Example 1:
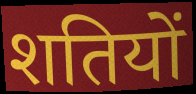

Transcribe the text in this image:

शतियों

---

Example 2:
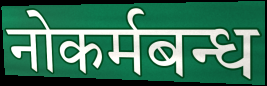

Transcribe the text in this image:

नोकर्मबन्ध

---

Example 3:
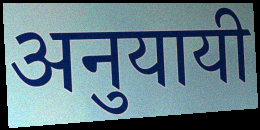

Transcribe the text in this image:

अनुयायी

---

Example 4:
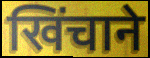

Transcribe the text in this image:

खिंचाने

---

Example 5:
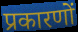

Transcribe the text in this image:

प्रकारणों